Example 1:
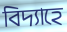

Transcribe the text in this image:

বিদ্যাহে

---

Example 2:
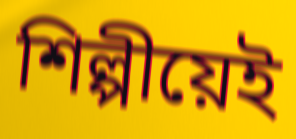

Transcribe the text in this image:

শিল্পীয়েই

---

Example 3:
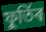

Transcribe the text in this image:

ফুৰ্তিৰ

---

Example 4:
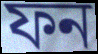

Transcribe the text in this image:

ফন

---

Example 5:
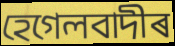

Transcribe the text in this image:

হেগেলবাদীৰ